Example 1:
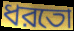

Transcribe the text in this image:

ধরতো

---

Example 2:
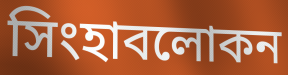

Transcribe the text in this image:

সিংহাবলোকন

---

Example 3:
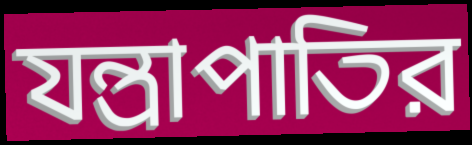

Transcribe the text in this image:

যন্ত্রাপাতির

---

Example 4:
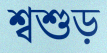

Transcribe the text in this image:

শ্বশুড়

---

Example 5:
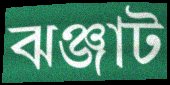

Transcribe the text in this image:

ঝঞ্জাট